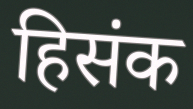
हिसंक